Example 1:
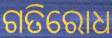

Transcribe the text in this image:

ଗତିରୋଧ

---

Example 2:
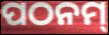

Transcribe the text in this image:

ପଠନମ୍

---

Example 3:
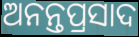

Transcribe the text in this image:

ଅନନ୍ତପ୍ରସାଦ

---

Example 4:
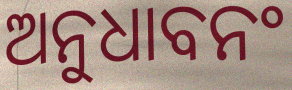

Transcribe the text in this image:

ଅନୁଧାବନଂ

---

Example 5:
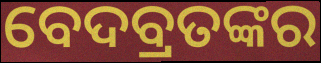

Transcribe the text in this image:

ବେଦବ୍ରତଙ୍କର